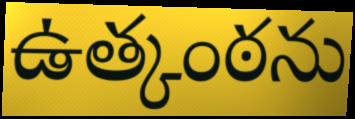
ఉత్కంఠను